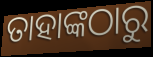
ତାହାଙ୍କଠାରୁ